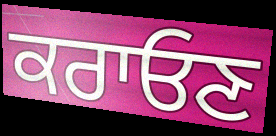
ਕਰਾਓਣ